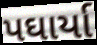
પઘાર્યા